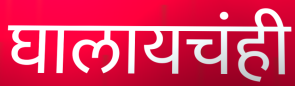
घालायचंही